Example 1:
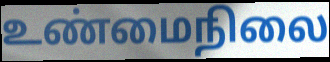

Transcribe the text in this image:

உண்மைநிலை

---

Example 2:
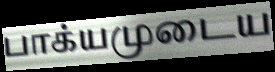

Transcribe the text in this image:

பாக்யமுடைய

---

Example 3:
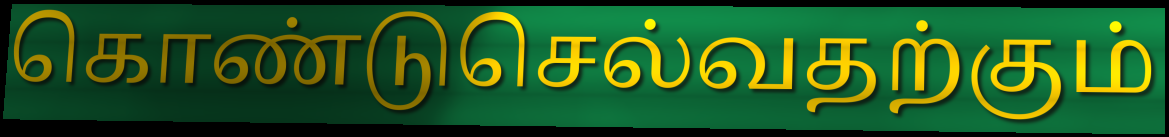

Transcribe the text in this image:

கொண்டுசெல்வதற்கும்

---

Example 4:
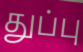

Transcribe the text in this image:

துப்பு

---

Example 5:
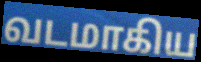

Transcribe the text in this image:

வடமாகிய